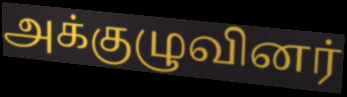
அக்குழுவினர்